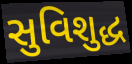
સુવિશુદ્ધ